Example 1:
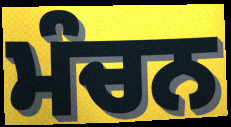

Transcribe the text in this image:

ਮੰਚਨ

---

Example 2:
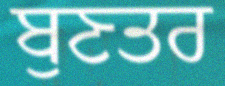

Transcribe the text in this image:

ਬੁਣਤਰ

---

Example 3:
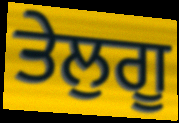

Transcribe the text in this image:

ਤੇਲੁਗੂ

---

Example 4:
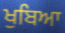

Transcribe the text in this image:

ਖੁਬਿਆ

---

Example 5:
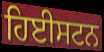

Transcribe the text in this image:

ਹਿਈਸਟਨ